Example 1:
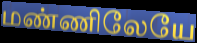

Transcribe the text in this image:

மண்ணிலேயே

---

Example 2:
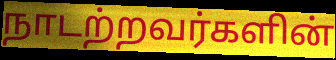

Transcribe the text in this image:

நாடற்றவர்களின்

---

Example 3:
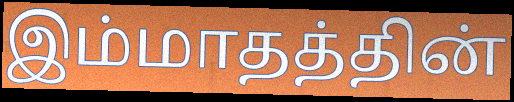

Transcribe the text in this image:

இம்மாதத்தின்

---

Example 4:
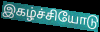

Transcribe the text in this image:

இகழ்ச்சியோடு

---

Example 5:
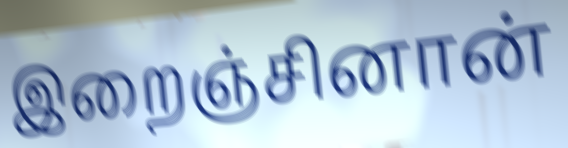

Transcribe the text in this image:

இறைஞ்சினான்